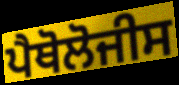
ਪੈਥੋਲੋਜੀਸ